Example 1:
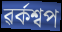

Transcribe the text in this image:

ৱৰ্কশ্বপ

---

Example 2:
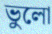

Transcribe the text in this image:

ভুলো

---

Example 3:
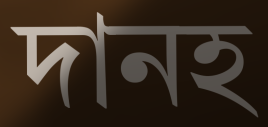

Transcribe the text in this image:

দানহ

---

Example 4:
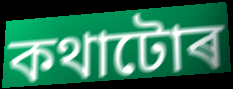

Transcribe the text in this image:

কথাটোৰ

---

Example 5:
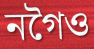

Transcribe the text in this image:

নগৈও